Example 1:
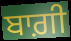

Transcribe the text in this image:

ਬਾਗ਼ੀ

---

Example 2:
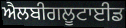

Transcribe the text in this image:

ਐਲਬੀਗਲੂਟਾਈਡ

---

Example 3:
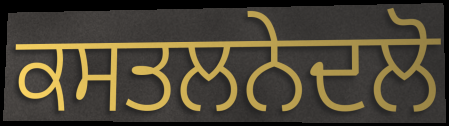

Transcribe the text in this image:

ਕਸਤਲਨੇਦਲੋ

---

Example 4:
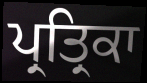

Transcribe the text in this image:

ਪ੍ਰਤ੍ਰਿਕਾ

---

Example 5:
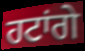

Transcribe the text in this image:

ਹਟਾਂਗੇ